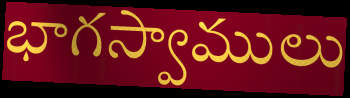
భాగస్వాములు